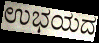
ಉಭಯದ